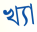
খ্যা